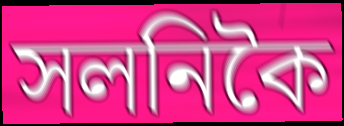
সলনিকৈ